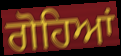
ਗੋਹਿਆਂ